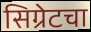
सिग्रेटचा